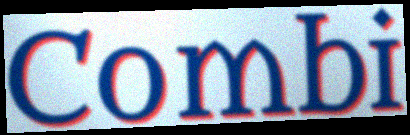
Combi